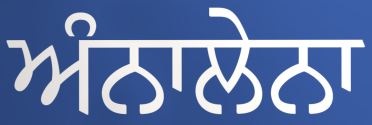
ਅੰਨਾਲੇਨਾ